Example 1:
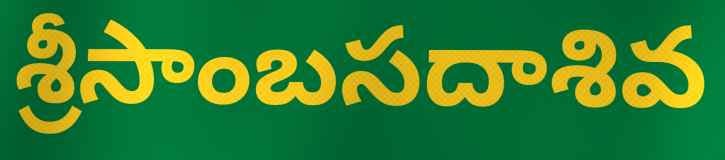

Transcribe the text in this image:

శ్రీసాంబసదాశివ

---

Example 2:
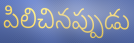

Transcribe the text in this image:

పిలిచినప్పుడు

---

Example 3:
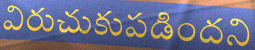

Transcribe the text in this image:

విరుచుకుపడిందని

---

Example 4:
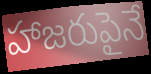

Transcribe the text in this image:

హాజరుపైనే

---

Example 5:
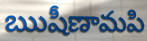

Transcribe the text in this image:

ఋషీణామపి